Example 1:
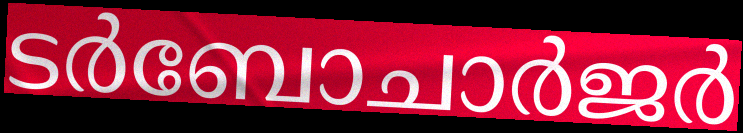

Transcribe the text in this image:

ടർബോചാർജർ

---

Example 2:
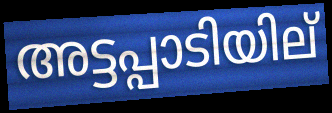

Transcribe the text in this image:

അട്ടപ്പാടിയില്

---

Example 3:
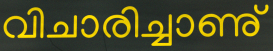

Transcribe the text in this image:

വിചാരിച്ചാണു്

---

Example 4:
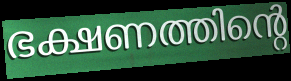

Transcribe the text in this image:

ഭക്ഷണത്തിന്റെ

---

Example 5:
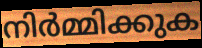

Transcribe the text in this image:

നിർമ്മിക്കുക